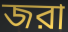
জরা